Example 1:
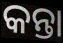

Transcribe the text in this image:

କନ୍ତା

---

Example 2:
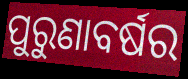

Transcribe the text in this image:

ପୁରୁଣାବର୍ଷର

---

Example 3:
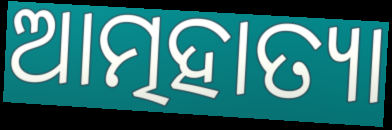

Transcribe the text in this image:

ଆତ୍ମହାତ୍ୟା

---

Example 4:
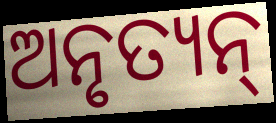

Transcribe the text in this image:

ଅନୃତ୍ୟନ୍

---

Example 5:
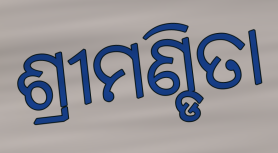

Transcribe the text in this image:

ଶ୍ରୀମଣ୍ଡିତା